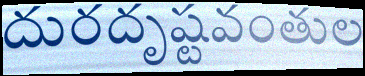
దురదృష్టవంతుల